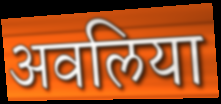
अवलिया